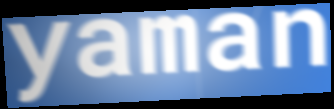
yaman